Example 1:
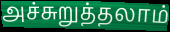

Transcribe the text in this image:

அச்சுறுத்தலாம்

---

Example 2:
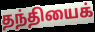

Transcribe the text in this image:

தந்தியைக்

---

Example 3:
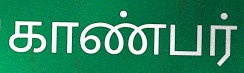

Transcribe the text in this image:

காண்பர்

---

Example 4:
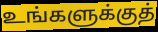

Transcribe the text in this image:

உங்களுக்குத்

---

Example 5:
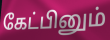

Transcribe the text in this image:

கேட்பினும்